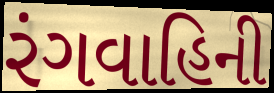
રંગવાહિની